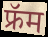
फ्रॅम